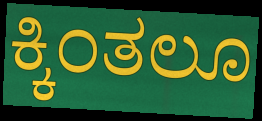
ಕ್ಕಿಂತಲೂ